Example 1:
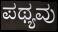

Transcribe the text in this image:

ಪಥ್ಯವು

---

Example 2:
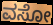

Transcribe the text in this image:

ವಸೋ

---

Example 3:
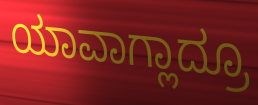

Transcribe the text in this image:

ಯಾವಾಗ್ಲಾದ್ರೂ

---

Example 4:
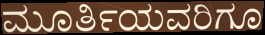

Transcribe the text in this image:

ಮೂರ್ತಿಯವರಿಗೂ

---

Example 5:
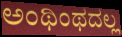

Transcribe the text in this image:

ಅಂಥಿಂಥದಲ್ಲ